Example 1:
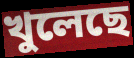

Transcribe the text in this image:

খুলেছে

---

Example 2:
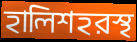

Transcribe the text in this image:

হালিশহরস্থ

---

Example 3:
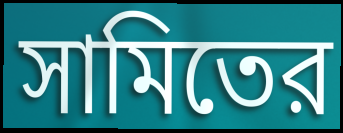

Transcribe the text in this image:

সামিতের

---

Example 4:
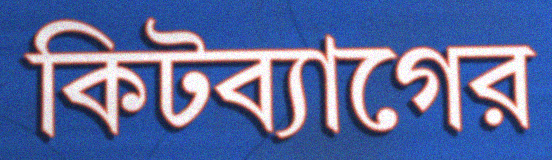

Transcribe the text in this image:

কিটব্যাগের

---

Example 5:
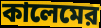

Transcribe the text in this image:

কালেমের